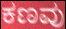
ಕಣವು